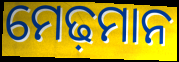
ମେଢ଼ମାନ